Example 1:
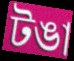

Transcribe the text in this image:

টঙা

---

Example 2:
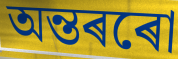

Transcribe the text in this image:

অন্তৰৰো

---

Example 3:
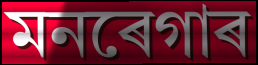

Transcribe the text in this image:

মনৰেগাৰ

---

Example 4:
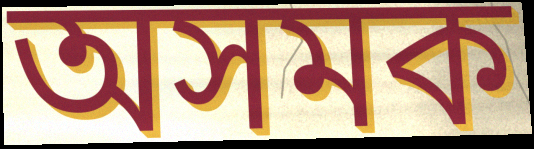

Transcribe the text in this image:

অসমক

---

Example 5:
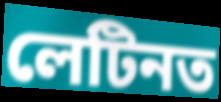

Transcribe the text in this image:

লেটিনত